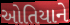
ઓતિયાને